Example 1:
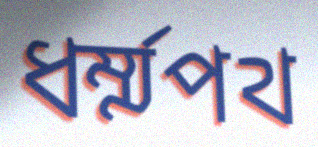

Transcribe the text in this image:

ধর্ম্মপথ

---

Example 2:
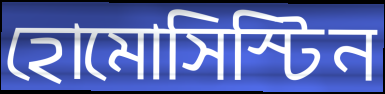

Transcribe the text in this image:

হোমোসিস্টিন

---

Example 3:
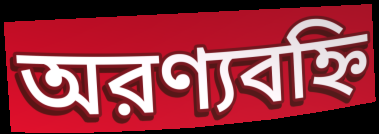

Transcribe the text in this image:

অরণ্যবহ্নি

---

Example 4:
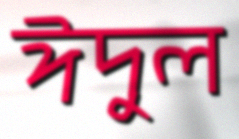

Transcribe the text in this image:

ঈদুল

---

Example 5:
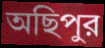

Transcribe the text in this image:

অছিপুর